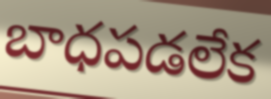
బాధపడలేక